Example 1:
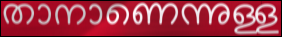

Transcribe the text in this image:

താനാണെന്നുള്ള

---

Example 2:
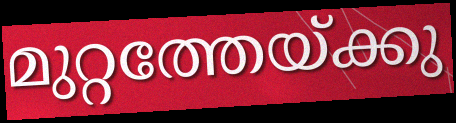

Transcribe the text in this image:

മുറ്റത്തേയ്ക്കു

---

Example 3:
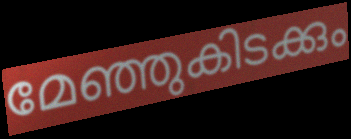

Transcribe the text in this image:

മേഞ്ഞുകിടക്കും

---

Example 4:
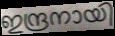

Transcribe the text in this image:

ഇന്ദ്രനായി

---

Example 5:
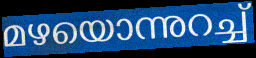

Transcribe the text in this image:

മഴയൊന്നുറച്ച്